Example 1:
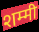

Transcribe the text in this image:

शम्मी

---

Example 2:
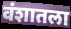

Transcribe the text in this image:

वंशातला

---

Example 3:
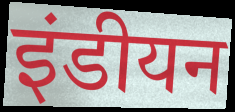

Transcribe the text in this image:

इंडीयन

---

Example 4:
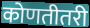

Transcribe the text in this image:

कोणतीतरी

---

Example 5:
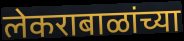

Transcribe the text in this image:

लेकराबाळांच्या